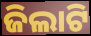
ଜିଲାଟି